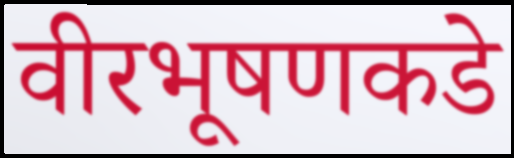
वीरभूषणकडे